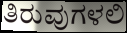
ತಿರುವುಗಳಲಿ